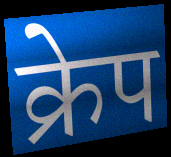
क्रेप